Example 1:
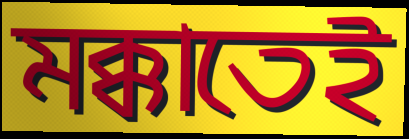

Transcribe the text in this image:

মক্কাতেই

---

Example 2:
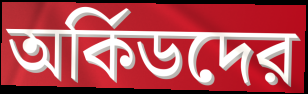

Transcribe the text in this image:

অর্কিডদের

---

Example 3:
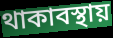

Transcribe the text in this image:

থাকাবস্থায়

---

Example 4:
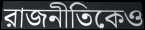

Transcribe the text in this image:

রাজনীতিকেও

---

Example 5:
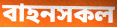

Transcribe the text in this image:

বাহনসকল